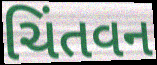
ચિંતવન